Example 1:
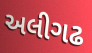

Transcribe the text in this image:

અલીગઢ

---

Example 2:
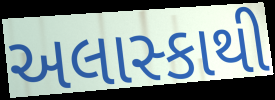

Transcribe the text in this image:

અલાસ્કાથી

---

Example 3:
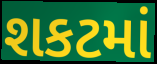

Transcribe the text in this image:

શકટમાં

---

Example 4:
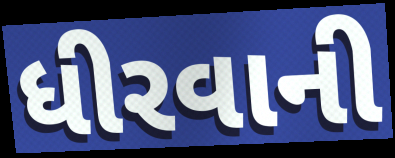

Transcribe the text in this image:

ધીરવાની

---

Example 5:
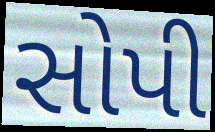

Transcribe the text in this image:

સોપી